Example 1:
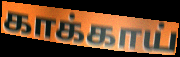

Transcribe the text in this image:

காக்காய்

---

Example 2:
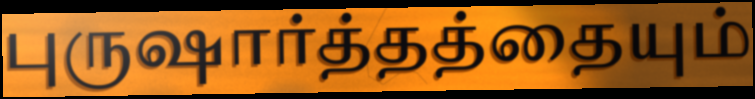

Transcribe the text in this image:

புருஷார்த்தத்தையும்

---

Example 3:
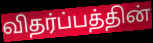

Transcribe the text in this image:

விதர்ப்பத்தின்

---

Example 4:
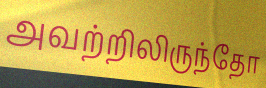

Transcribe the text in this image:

அவற்றிலிருந்தோ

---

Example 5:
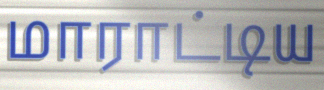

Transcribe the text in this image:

மாராட்டிய